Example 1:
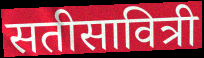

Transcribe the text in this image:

सतीसावित्री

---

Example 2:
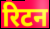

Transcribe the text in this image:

रिटन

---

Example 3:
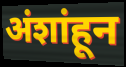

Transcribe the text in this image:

अंशांहून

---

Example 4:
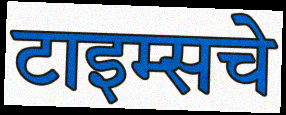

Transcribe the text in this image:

टाइम्सचे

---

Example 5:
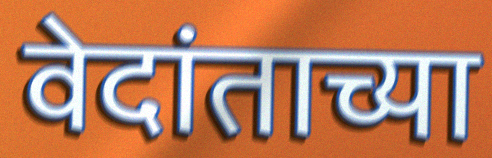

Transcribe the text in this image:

वेदांताच्या